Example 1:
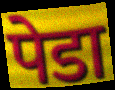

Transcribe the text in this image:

पेडा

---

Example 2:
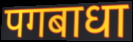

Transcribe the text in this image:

पगबाधा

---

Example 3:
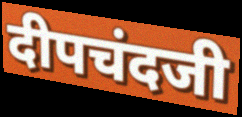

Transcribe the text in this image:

दीपचंदजी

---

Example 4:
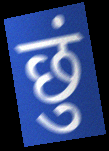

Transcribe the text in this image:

छुं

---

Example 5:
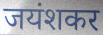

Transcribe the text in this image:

जयंशकर